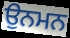
ਉਨਮਨ